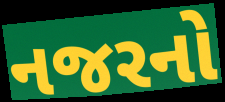
નજરનો